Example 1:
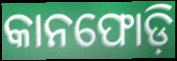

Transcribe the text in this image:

କାନଫୋଡ଼ି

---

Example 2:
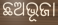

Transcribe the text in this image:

ଛଅଭୂଜା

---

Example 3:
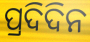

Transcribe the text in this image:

ପ୍ରଦିଦିନ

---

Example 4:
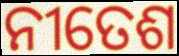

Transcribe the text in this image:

ନୀତେଶ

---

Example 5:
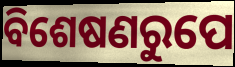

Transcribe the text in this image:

ବିଶେଷଣରୁପେ